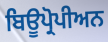
ਬਿਊਪ੍ਰੋਪੀਅਨ